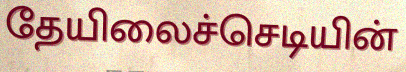
தேயிலைச்செடியின்